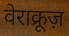
वेराक्रूज़